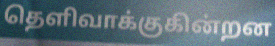
தெளிவாக்குகின்றன